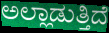
ಅಲ್ಲಾಡುತ್ತಿದೆ